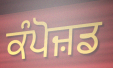
ਕੰਪੋਜ਼ਡ